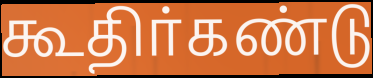
கூதிர்கண்டு